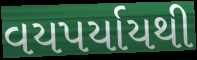
વયપર્યાયથી